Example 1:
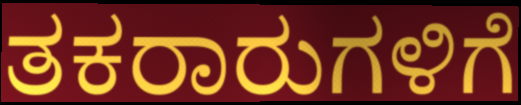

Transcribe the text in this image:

ತಕರಾರುಗಳಿಗೆ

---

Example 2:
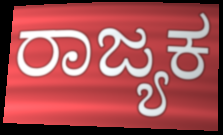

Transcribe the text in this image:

ರಾಜ್ಯಕ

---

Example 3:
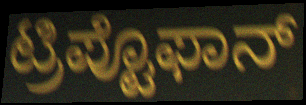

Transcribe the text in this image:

ಟ್ರಿಪ್ಟೊಫಾನ್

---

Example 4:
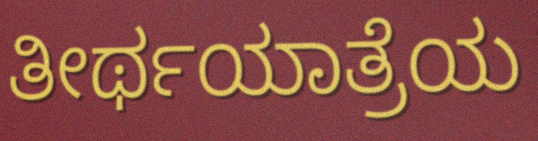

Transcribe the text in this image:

ತೀರ್ಥಯಾತ್ರೆಯ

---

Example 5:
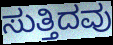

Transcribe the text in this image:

ಸುತ್ತಿದವು